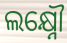
ଲକ୍ଷ୍ନୌ